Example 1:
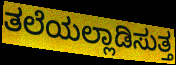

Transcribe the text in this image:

ತಲೆಯಲ್ಲಾಡಿಸುತ್ತ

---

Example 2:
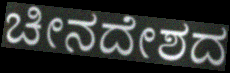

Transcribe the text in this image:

ಚೀನದೇಶದ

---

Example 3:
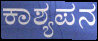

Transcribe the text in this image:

ಕಾಶ್ಯಪನ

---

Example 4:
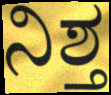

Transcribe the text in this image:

ನಿಶ್ತ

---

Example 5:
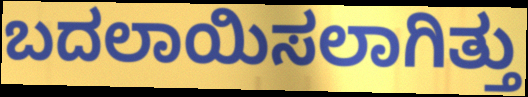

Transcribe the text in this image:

ಬದಲಾಯಿಸಲಾಗಿತ್ತು